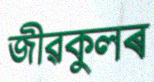
জীৱকুলৰ